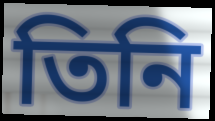
তিনি